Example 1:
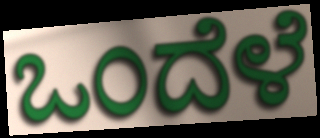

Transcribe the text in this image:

ಒಂದೆಳೆ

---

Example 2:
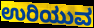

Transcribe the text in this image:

ಉರಿಯುವ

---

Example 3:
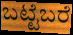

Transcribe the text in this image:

ಬಟ್ಟೆಬರೆ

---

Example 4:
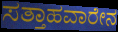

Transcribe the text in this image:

ಸತ್ತಾಹವಾರೇನ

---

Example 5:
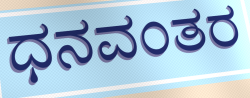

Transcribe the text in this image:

ಧನವಂತರ